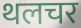
थलचर